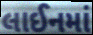
લાઈનમાં